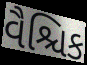
વૈશ્ચિક